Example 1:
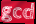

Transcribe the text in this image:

gcd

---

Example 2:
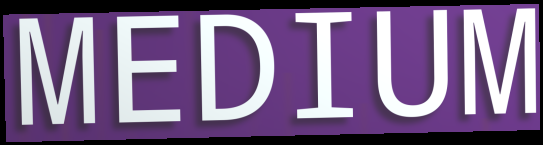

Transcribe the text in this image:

MEDIUM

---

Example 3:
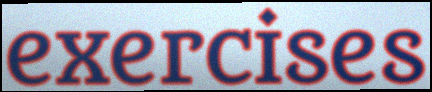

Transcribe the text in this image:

exercises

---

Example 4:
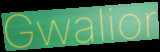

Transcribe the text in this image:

Gwalior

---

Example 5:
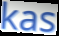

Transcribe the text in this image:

kas